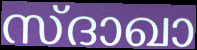
സ്ദാഖാ